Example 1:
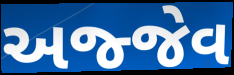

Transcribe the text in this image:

અજ્જેવ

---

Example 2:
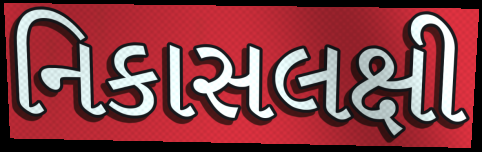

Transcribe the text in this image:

નિકાસલક્ષી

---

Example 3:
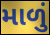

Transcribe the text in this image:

માળું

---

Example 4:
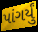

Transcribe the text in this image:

પાંગર્યું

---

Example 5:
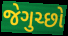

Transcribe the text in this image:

જેગુચ્છો